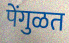
पेंगुळत